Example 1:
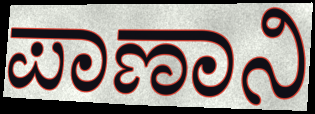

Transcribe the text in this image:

ಪಾಣಾನಿ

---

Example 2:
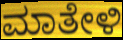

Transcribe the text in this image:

ಮಾತೇಳಿ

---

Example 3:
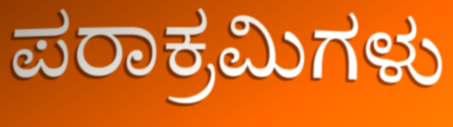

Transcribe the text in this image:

ಪರಾಕ್ರಮಿಗಳು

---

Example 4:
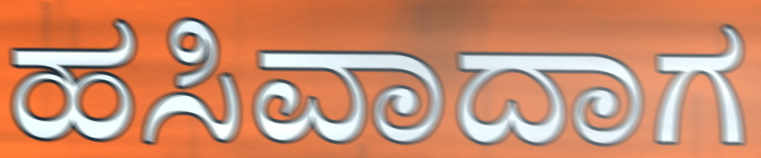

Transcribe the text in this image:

ಹಸಿವಾದಾಗ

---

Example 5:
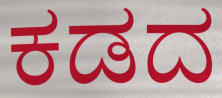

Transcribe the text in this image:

ಕಡದ